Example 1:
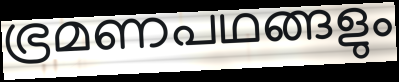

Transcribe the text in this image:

ഭ്രമണപഥങ്ങളും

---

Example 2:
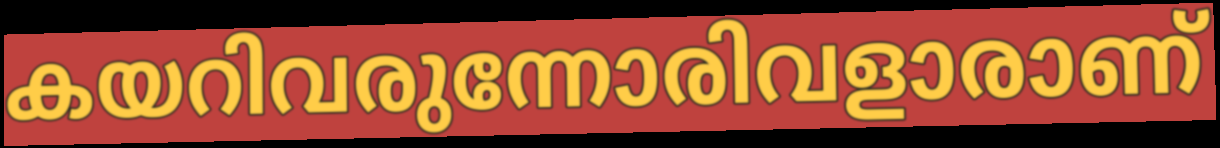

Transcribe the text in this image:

കയറിവരുന്നോരിവളാരാണ്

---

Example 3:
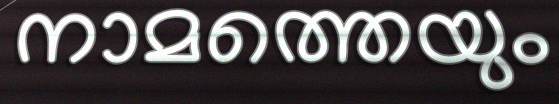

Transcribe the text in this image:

നാമത്തെയും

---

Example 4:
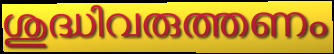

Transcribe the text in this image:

ശുദ്ധിവരുത്തണം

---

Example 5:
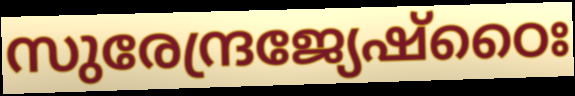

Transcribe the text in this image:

സുരേന്ദ്രജ്യേഷ്ഠൈഃ